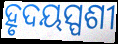
ହୃଦୟସ୍ପଶୀ